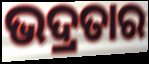
ଭଦ୍ରତାର